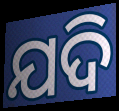
ଯଦି